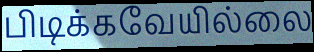
பிடிக்கவேயில்லை